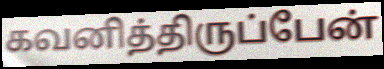
கவனித்திருப்பேன்